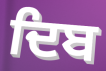
ਦਿਬ